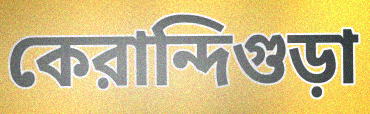
কেরান্দিগুড়া